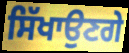
ਸਿੱਖਾਉਣਗੇ